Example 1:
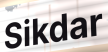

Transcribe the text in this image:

Sikdar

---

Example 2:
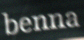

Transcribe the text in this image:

benna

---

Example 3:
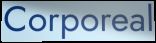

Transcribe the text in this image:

Corporeal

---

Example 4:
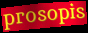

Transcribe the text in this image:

prosopis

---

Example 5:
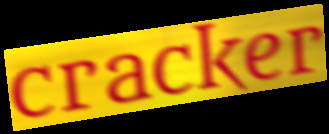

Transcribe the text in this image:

cracker